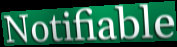
Notifiable